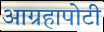
आग्रहापोटी